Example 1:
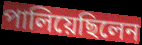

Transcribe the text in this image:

পালিয়েছিলেন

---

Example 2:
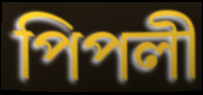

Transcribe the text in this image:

পিপলী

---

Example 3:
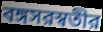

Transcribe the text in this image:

বঙ্গসরস্বতীর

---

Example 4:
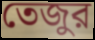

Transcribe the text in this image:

তেজুর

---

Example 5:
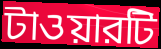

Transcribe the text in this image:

টাওয়ারটি